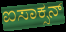
ಐಸಾಕ್ಸನ್